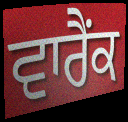
ਵਾਰੈਂਕ